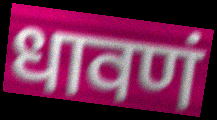
धावणं